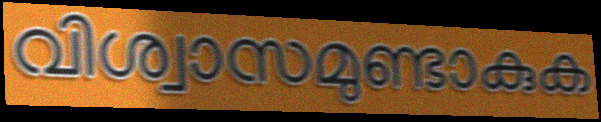
വിശ്വാസമുണ്ടാകുക